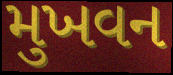
મુખવન